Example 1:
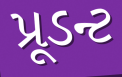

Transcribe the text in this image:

પ્રૂડન્ટ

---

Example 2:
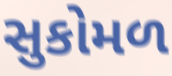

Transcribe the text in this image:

સુકોમળ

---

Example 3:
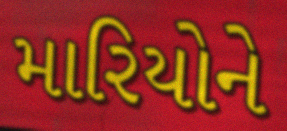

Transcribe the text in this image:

મારિયોને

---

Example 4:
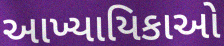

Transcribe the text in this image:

આખ્યાયિકાઓ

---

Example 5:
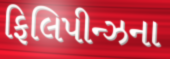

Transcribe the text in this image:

ફિલિપીન્ઝના